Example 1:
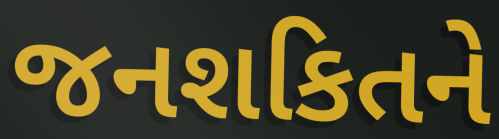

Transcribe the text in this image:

જનશકિતને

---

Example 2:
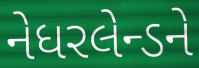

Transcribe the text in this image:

નેધરલેન્ડને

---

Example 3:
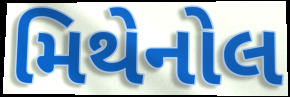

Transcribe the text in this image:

મિથેનોલ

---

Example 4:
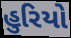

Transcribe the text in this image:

હુરિયો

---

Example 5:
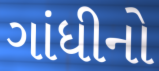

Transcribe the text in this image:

ગાંધીનો